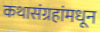
कथासंग्रहांमधून